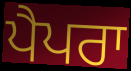
ਪੈਪਰਾ